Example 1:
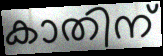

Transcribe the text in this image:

കാതിന്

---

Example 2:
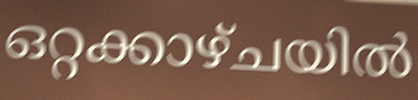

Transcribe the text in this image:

ഒറ്റക്കാഴ്ചയിൽ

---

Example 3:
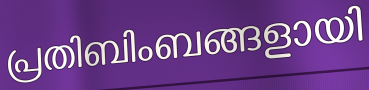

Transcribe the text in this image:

പ്രതിബിംബങ്ങളായി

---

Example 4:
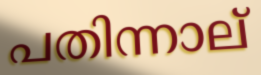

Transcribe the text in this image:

പതിന്നാല്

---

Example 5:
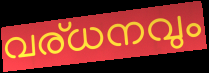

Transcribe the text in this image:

വര്ധനവും